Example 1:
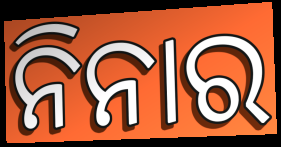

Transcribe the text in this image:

ନିନାର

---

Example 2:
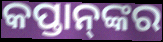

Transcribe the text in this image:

କପ୍ତାନ୍‌ଙ୍କର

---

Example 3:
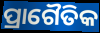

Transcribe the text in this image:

ପ୍ରାଗୈତିକ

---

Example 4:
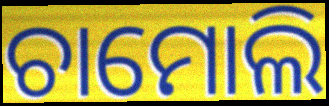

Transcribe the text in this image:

ଚାମୋଲି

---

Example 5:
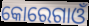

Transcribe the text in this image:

କୋରେଗାଓଁ